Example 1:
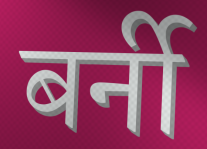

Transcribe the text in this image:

बर्नी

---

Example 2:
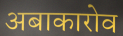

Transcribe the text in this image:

अबाकारोव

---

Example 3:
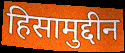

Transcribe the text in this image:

हिसामुद्दीन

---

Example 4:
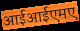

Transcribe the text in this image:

आईआईएमए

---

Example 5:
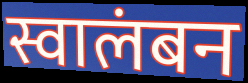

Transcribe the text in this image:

स्वालंबन